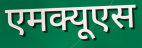
एमक्यूएस